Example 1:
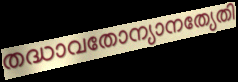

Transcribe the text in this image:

തദ്ധാവതോന്യാനത്യേതി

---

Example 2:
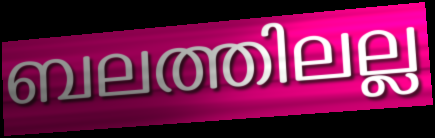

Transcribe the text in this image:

ബലത്തിലല്ല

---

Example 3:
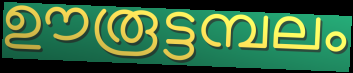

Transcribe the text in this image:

ഊരൂട്ടമ്പലം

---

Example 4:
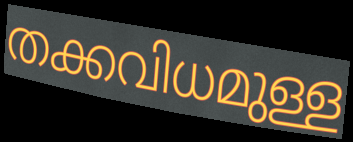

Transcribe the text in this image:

തക്കവിധമുള്ള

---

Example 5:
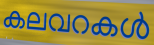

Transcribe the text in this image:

കലവറകൾ